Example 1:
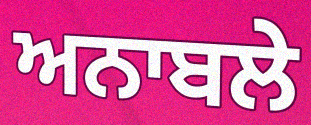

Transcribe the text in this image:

ਅਨਾਬਲੇ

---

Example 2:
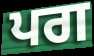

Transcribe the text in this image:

ਪਗ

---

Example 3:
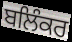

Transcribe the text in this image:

ਬਲਿੰਕਰ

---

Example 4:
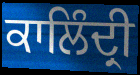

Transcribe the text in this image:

ਕਾਲਿੰਦ੍ਰੀ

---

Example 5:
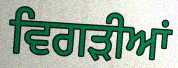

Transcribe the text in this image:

ਵਿਗੜੀਆਂ